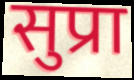
सुप्रा